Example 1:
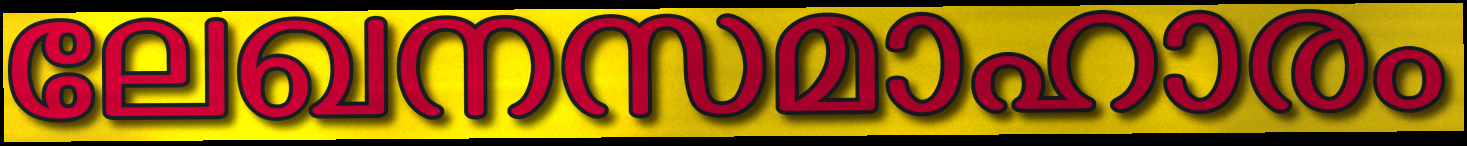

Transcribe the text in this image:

ലേഖനസമാഹാരം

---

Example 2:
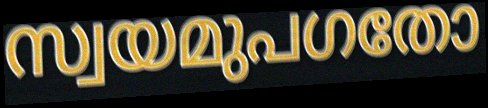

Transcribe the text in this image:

സ്വയമുപഗതോ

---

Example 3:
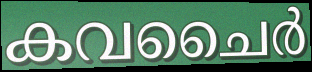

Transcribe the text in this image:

കവചൈർ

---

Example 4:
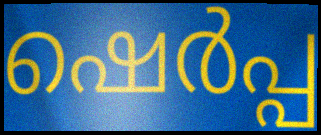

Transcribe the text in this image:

ഷെർപ്പ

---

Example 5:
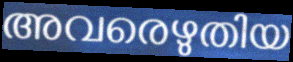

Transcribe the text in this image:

അവരെഴുതിയ